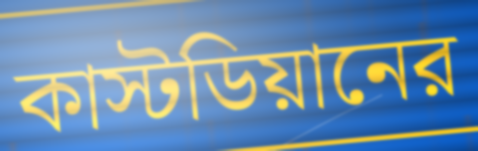
কাস্টডিয়ানের